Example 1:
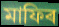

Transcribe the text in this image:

মাফিৰ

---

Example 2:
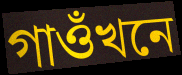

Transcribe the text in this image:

গাওঁখনে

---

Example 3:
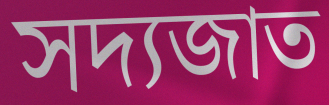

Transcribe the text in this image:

সদ্যজাত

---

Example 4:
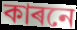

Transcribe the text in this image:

কাৰনে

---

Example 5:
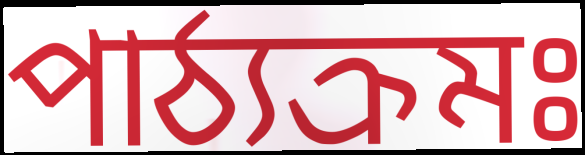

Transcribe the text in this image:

পাঠ্যক্ৰমঃ